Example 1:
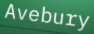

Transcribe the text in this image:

Avebury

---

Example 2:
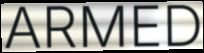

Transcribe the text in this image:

ARMED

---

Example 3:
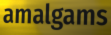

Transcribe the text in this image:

amalgams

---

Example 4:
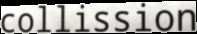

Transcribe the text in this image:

collission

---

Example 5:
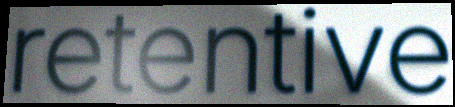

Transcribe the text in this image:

retentive